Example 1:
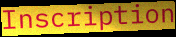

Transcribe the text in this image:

Inscription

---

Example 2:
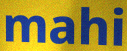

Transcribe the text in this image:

mahi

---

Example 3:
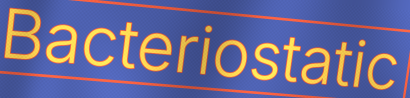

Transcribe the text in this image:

Bacteriostatic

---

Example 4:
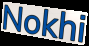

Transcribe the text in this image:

Nokhi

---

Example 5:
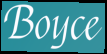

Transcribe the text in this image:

Boyce